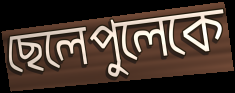
ছেলেপুলেকে